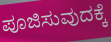
ಪೂಜಿಸುವುದಕ್ಕೆ